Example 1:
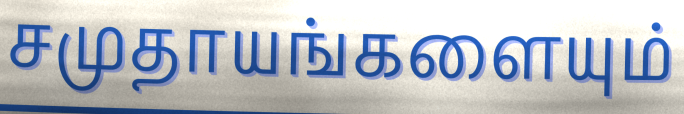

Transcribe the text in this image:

சமுதாயங்களையும்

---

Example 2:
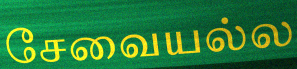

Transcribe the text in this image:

சேவையல்ல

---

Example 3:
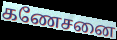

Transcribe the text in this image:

கணேசனை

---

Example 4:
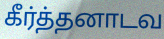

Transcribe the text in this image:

கீர்த்தனாடவ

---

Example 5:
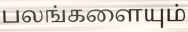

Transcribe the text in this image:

பலங்களையும்